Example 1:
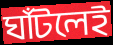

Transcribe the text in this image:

ঘাঁটলেই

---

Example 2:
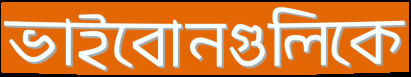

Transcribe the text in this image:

ভাইবোনগুলিকে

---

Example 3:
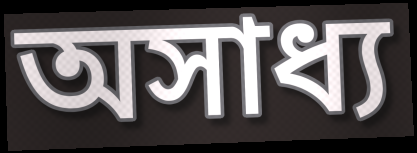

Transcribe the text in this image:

অসাধ্য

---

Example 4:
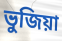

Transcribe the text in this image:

ভুজিয়া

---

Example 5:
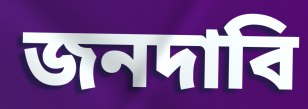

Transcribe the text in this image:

জনদাবি